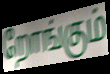
றோங்கும்